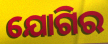
ଯୋଗିର